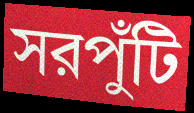
সরপুঁটি